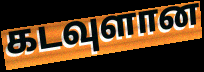
கடவுளான